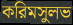
করিমসুলভ